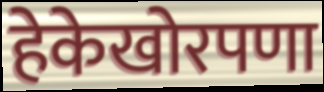
हेकेखोरपणा